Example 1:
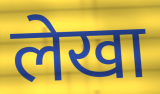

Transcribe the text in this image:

लेखा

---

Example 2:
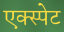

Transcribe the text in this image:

एक्स्पेट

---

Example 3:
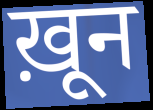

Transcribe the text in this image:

ख़ून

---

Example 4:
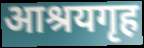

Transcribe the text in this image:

आश्रयगृह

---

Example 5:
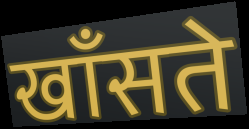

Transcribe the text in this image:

खाँसते